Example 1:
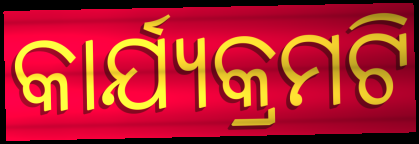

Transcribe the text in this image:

କାର୍ଯ୍ୟକ୍ରମଟି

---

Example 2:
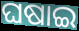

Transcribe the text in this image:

ଘଷାଇ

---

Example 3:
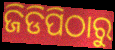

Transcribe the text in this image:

ଜିଡିପିଠାରୁ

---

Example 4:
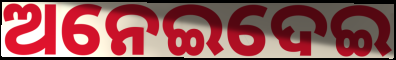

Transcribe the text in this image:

ଅନେଇଦେଇ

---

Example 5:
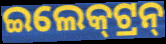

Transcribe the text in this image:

ଇଲେକ୍‌ଟ୍ରନ୍